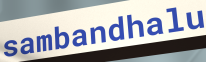
sambandhalu